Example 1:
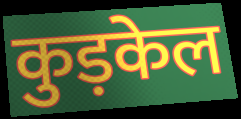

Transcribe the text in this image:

कुड़केल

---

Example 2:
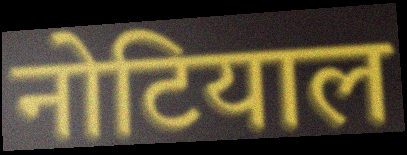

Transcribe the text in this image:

नोटियाल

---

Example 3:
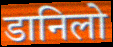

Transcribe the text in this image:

डानिलो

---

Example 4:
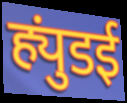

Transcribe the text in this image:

ह्युंडई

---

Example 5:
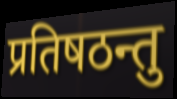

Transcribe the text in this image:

प्रतिषठन्तु